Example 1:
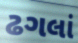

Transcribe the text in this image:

ઢગલાં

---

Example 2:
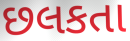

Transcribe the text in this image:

છલકતા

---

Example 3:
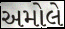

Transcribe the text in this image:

અમોલે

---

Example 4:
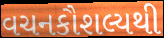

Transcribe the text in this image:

વચનકૌશલ્યથી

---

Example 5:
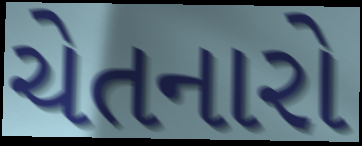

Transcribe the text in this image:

ચેતનારો